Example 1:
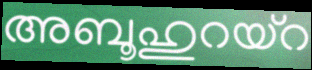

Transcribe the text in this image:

അബൂഹുറയ്റ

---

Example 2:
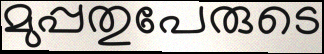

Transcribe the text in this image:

മുപ്പതുപേരുടെ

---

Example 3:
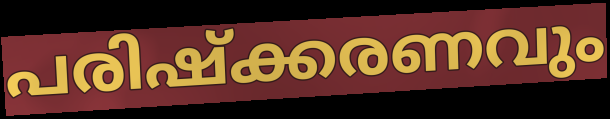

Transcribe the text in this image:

പരിഷ്ക്കരണവും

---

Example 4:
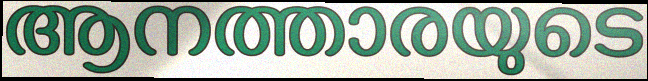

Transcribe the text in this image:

ആനത്താരയുടെ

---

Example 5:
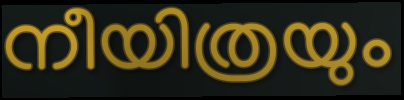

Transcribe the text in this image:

നീയിത്രയും